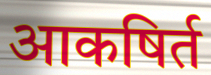
आकषिर्त